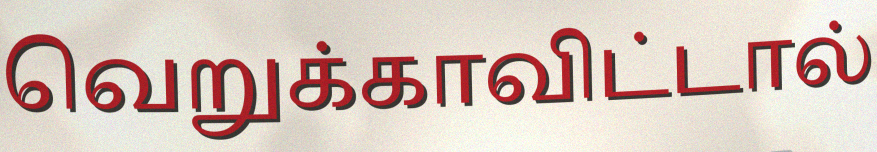
வெறுக்காவிட்டால்